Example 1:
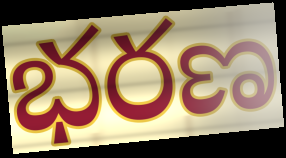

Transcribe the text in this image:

భరణ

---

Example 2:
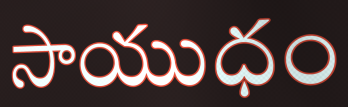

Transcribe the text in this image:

సాయుధం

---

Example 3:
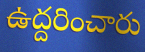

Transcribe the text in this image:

ఉద్దరించారు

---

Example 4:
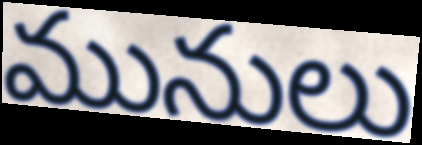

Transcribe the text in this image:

మునులు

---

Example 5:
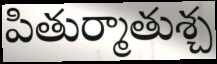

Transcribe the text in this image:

పితుర్మాతుశ్చ